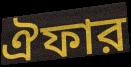
ঐফার